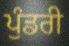
ਪੁੰਡਰੀ